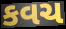
કવચ